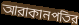
আরাকানপতির